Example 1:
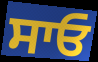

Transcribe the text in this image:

ਸਾਓ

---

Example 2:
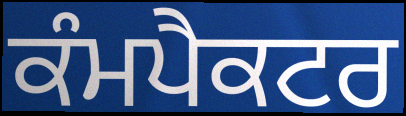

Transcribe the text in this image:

ਕੰਮਪੈਕਟਰ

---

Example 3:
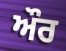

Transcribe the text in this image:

ਔਰ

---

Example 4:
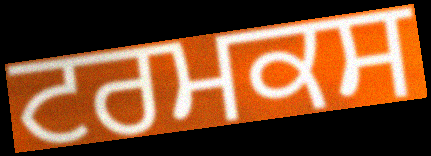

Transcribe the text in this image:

ਟਰਮਕਸ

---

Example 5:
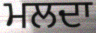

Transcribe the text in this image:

ਮਲਦਾ